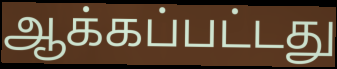
ஆக்கப்பட்டது